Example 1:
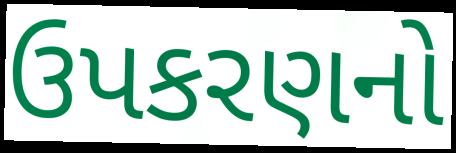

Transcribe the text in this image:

ઉપકરણનો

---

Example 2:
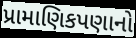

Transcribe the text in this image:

પ્રામાણિકપણાનો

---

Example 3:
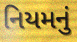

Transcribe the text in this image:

નિયમનું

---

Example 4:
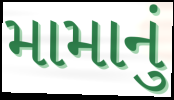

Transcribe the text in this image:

મામાનું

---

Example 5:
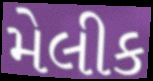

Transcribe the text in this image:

મેલીક